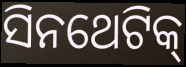
ସିନଥେଟିକ୍